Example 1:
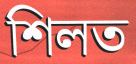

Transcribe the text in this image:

শিলত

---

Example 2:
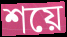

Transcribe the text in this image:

শয়ে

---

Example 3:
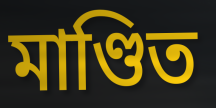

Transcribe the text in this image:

মাণ্ডিত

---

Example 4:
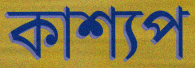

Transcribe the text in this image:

কাশ্যপ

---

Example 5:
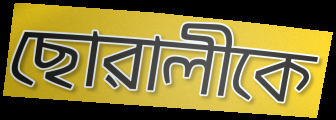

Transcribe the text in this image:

ছোৱালীকে